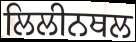
ਲਿਲੀਨਥਲ